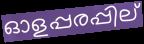
ഓളപ്പരപ്പില്